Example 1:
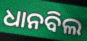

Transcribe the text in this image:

ଧାନବିଲ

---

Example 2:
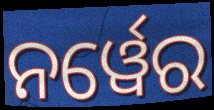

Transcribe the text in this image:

ନର୍ୱେର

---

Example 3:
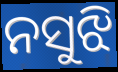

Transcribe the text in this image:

ନସୁଝି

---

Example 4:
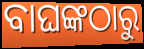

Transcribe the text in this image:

ବାଘଙ୍କଠାରୁ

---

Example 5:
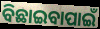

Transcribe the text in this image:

ବିଛାଇବାପାଇଁ